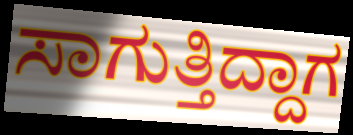
ಸಾಗುತ್ತಿದ್ದಾಗ